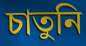
চাতুনি